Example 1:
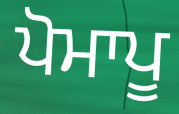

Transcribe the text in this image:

ਪੋਮਾਪੂ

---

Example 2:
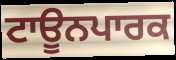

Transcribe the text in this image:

ਟਾਊਨਪਾਰਕ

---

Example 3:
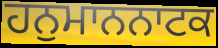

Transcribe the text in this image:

ਹਨੁਮਾਨਨਾਟਕ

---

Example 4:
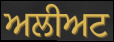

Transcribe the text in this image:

ਅਲੀਅਟ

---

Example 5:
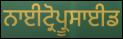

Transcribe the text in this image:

ਨਾਈਟ੍ਰੋਪ੍ਰੂਸਾਈਡ